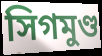
সিগমুণ্ড